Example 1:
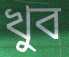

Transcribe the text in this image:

খুব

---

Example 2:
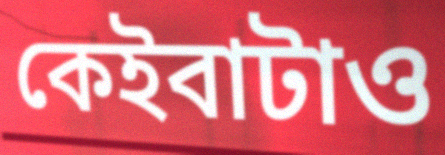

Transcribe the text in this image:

কেইবাটাও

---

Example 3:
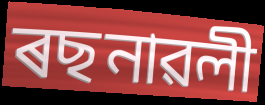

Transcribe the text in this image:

ৰছনাৱলী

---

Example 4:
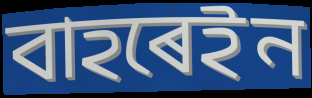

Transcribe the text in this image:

বাহৰেইন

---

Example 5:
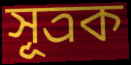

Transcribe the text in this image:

সূত্ৰক